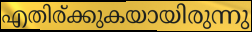
എതിര്ക്കുകയായിരുന്നു